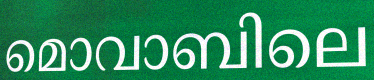
മൊവാബിലെ